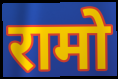
रामो